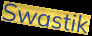
Swastik